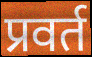
प्रवर्त